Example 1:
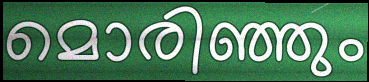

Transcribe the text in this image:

മൊരിഞ്ഞും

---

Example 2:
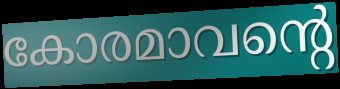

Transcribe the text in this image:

കോരമാവന്റെ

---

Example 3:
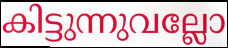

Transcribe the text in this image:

കിട്ടുന്നുവല്ലോ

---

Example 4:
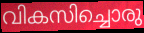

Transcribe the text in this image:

വികസിച്ചൊരു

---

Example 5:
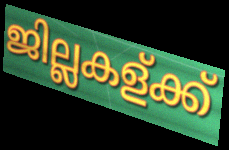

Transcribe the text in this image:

ജില്ലകള്ക്ക്